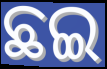
ଛଇ